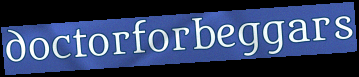
doctorforbeggars